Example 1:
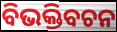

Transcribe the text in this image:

ବିଭକ୍ତିବଚନ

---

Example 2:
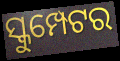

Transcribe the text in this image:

ସ୍କୁମ୍ପେଟର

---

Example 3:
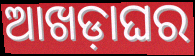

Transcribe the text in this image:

ଆଖଡ଼ାଘର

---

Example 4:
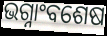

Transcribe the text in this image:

ଭଗ୍ନାଂବଶେଷ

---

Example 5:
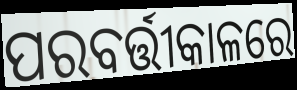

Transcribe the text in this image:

ପରବର୍ତ୍ତୀକାଳରେ